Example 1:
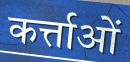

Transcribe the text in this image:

कर्त्ताओं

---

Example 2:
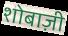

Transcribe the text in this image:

शोबाज़ी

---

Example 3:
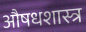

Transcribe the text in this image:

औषधशास्त्र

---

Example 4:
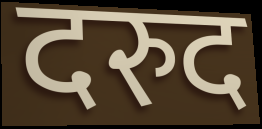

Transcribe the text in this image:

दरुद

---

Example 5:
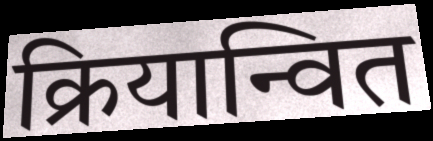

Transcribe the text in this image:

क्रियान्वित